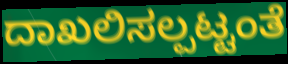
ದಾಖಲಿಸಲ್ಪಟ್ಟಂತೆ